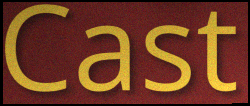
Cast